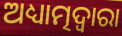
ଅଧ୍ୟାତ୍ମଦ୍ୱାରା